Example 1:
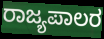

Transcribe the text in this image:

ರಾಜ್ಯಪಾಲರ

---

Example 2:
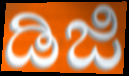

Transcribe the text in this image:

ಡಿಜಿ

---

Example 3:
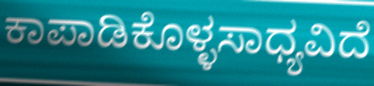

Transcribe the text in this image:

ಕಾಪಾಡಿಕೊಳ್ಳಸಾಧ್ಯವಿದೆ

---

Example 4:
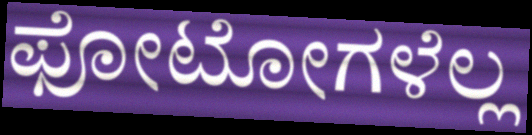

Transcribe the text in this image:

ಫೋಟೋಗಳೆಲ್ಲ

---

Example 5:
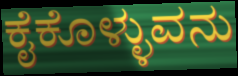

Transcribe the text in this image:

ಕೈಕೊಳ್ಳುವನು